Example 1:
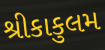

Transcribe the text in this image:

શ્રીકાકુલમ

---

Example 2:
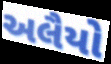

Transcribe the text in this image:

અલૈયો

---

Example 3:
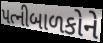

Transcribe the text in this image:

પત્નીબાળકોને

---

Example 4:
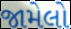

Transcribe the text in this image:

જામેલો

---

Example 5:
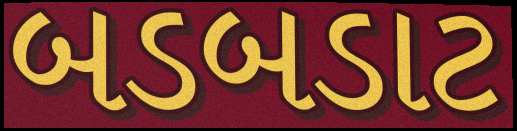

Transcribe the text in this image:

બડબડાટ